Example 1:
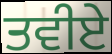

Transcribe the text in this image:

ਤਵੀਏ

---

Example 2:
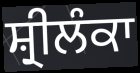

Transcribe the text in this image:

ਸ਼੍ਰ੍ਰੀਲੰਕਾ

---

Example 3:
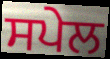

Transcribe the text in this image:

ਸਪੇਲ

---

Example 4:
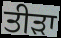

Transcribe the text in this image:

ਤੀੜਾ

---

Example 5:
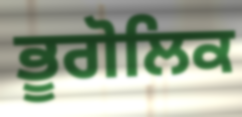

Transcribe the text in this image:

ਭੂਗੋਲਿਕ